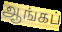
ஆங்கப்